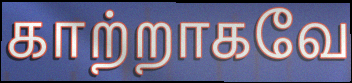
காற்றாகவே